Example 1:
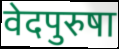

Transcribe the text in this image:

वेदपुरुषा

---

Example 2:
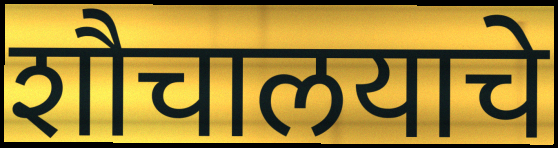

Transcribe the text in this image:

शौचालयाचे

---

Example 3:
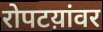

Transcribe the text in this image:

रोपटय़ांवर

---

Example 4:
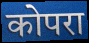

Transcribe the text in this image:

कोपरा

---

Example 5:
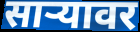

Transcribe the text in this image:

साऱ्यावर